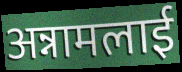
अन्नामलाई